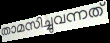
താമസിച്ചുവന്നത്